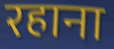
रहाना